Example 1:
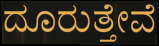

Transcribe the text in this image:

ದೂರುತ್ತೇವೆ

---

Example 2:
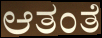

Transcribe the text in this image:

ಆತಂತೆ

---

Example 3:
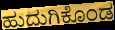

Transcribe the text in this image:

ಹುದುಗಿಕೊಂಡ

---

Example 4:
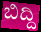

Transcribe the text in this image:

ಬಿದ್ದಿ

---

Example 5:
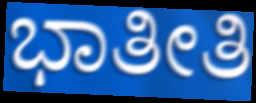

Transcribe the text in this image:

ಭಾತೀತಿ